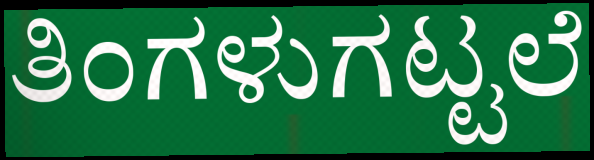
ತಿಂಗಳುಗಟ್ಟಲೆ